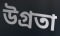
উগ্ৰতা